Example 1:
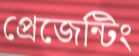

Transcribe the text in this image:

প্রেজেন্টিং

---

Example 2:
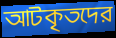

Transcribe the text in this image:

আটকৃতদের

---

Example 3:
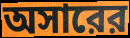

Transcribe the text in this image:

অসারের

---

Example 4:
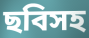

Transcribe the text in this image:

ছবিসহ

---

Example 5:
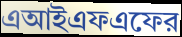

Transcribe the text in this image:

এআইএফএফের